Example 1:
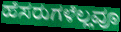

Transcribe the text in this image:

ಹೆಸರುಗಳೆಲ್ಲವೂ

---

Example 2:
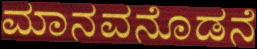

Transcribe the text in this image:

ಮಾನವನೊಡನೆ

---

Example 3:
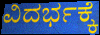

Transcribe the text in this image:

ವಿದರ್ಭಕ್ಕೆ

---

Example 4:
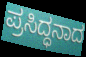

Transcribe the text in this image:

ಪ್ರಸಿದ್ಧನಾದ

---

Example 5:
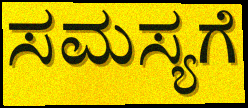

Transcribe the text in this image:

ಸಮಸ್ಯಗೆ